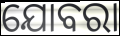
ଯୋବରା